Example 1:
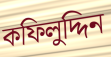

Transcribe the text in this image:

কফিলুদ্দিন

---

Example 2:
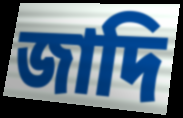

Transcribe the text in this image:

জাদি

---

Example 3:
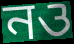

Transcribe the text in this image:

নও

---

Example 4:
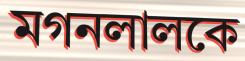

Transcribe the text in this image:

মগনলালকে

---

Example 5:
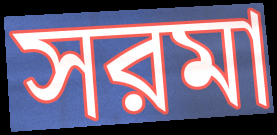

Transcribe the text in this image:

সরমা